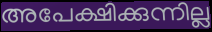
അപേക്ഷിക്കുന്നില്ല